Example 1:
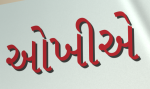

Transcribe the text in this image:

ઓખીએ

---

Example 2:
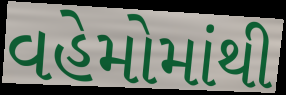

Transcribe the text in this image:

વહેમોમાંથી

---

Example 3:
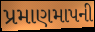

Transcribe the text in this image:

પ્રમાણમાપની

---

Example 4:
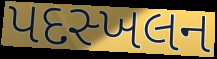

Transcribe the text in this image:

પદસ્ખલન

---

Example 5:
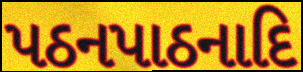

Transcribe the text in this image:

પઠનપાઠનાદિ